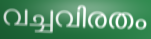
വച്ചവിരതം